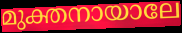
മുക്തനായാലേ